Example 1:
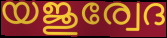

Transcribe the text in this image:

യജുര്വേദ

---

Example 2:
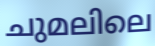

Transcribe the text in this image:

ചുമലിലെ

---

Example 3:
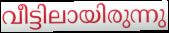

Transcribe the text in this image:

വീട്ടിലായിരുന്നു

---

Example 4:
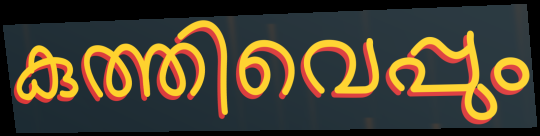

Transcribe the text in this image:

കുത്തിവെപ്പും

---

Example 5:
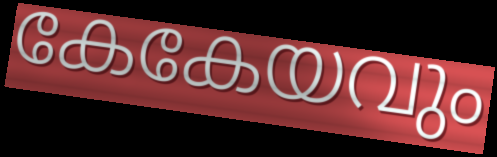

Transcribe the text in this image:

കേകേയവും